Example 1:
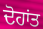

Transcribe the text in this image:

ਦੋਹਾਂਤ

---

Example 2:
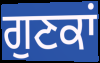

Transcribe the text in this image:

ਗੁਣਕਾਂ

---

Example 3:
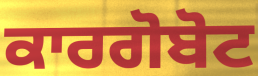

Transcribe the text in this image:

ਕਾਰਗੋਬੋਟ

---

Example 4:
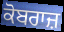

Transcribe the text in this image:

ਕੋਬਰਾਜ਼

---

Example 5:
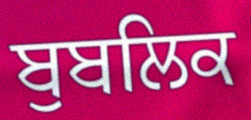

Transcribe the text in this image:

ਬੁਬਲਿਕ